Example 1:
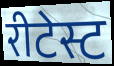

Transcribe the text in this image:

रीटेस्ट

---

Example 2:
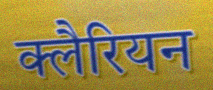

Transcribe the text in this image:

क्लैरियन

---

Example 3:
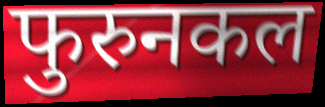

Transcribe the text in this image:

फुरुनकल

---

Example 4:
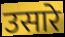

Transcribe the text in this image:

उसारे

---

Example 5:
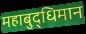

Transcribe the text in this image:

महाबुद्धिमान